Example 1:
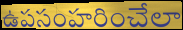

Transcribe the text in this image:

ఉపసంహరించేలా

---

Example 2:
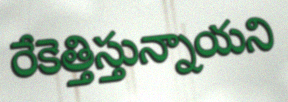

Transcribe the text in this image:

రేకెత్తిస్తున్నాయని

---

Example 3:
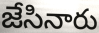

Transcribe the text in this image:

జేసినారు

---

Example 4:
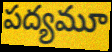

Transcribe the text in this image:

పద్యమూ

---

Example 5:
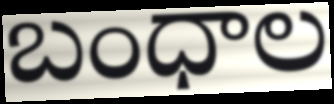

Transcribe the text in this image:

బంధాల